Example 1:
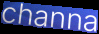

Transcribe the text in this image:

channa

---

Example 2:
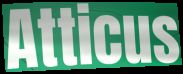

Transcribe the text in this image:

Atticus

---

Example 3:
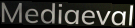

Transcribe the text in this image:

Mediaeval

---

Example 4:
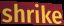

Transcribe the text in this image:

shrike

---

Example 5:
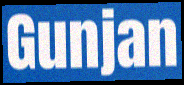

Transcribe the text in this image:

Gunjan